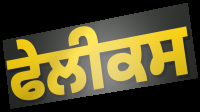
ਫੇਲੀਕਸ